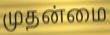
முதன்மை